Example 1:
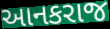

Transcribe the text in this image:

આનકરાજ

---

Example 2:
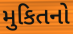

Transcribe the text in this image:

મુકિતનો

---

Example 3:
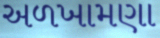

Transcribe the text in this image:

અળખામણા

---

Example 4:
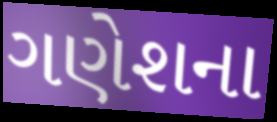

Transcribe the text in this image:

ગણેશના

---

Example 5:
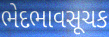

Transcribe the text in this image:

ભેદભાવસૂચક